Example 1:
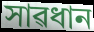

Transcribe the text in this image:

সাৱধান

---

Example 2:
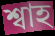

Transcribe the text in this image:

শ্বাহ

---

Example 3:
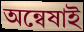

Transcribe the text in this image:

অন্বেষাই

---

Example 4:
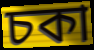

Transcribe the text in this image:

চকা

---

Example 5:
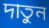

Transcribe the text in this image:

দাতুন